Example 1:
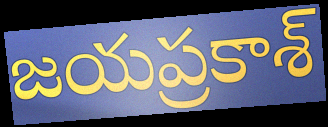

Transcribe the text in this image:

జయప్రకాశ్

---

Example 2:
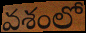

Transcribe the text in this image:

వశంలో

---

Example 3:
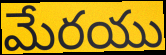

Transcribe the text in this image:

మేరయు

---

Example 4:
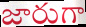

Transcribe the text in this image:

జారుగా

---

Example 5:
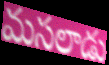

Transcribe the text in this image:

మసలాడు